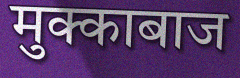
मुक्काबाज